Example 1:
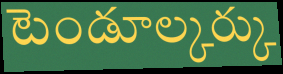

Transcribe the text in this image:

టెండూల్కర్కు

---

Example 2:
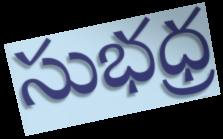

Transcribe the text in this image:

సుభధ్ర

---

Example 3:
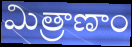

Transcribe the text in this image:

మిత్రాణాం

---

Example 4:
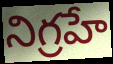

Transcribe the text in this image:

నిగ్రహే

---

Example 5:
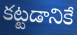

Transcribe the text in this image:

కట్టడానికే